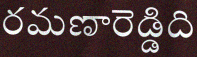
రమణారెడ్డిది